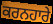
ਕਰਨਹਾਰੇ